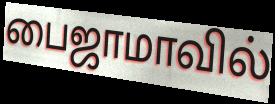
பைஜாமாவில்